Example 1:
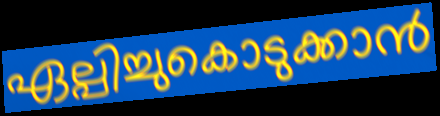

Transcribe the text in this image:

ഏല്പിച്ചുകൊടുക്കാൻ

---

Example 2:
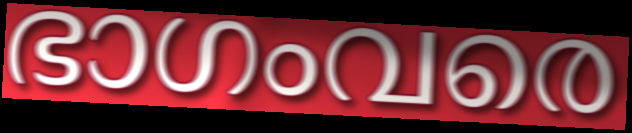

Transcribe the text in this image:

ഭാഗംവരെ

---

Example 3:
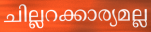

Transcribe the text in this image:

ചില്ലറക്കാര്യമല്ല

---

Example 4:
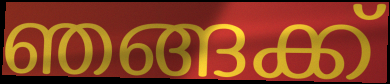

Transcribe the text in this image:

ഞങ്ങക്ക്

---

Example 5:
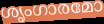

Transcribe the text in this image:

ശൃംഗാരമോ